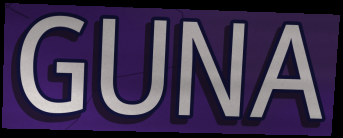
GUNA